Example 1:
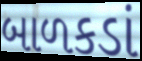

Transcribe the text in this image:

બાળકડાં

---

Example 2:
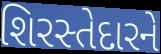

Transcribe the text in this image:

શિરસ્તેદારને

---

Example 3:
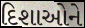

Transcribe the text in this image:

દિશાઓને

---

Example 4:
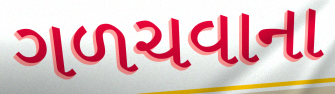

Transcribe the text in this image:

ગળચવાના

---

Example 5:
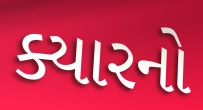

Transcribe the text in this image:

ક્યારનો